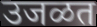
उजळत